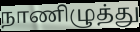
நாணிழுத்து